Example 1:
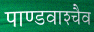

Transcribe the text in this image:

पाण्डवाश्चैव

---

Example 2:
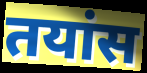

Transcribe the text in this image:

तयांस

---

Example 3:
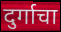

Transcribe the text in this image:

दुर्गाचा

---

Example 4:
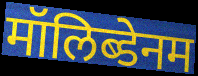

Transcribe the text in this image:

मॉलिब्डेनम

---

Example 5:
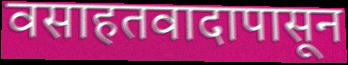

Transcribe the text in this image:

वसाहतवादापासून